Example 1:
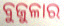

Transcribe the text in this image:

ବୁଜୁଳାର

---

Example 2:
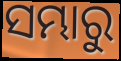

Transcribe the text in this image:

ସମ୍ଭାରୁ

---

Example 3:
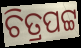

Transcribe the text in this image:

ଚିତ୍ରପଟ୍ଟ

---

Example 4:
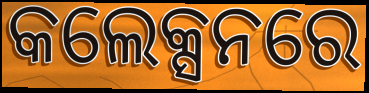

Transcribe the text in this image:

କଲେକ୍ସନରେ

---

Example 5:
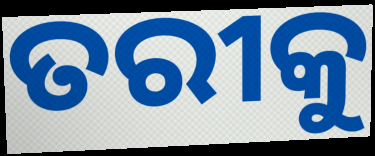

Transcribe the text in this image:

ତରୀକୁ